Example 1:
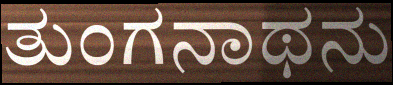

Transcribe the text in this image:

ತುಂಗನಾಥನು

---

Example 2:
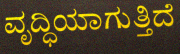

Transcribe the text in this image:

ವೃದ್ಧಿಯಾಗುತ್ತಿದೆ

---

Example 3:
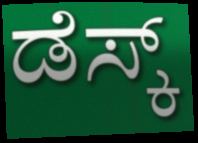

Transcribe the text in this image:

ಡೆಸ್ಕ್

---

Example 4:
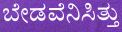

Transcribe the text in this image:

ಬೇಡವೆನಿಸಿತ್ತು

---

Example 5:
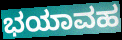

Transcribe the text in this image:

ಭಯಾವಹ